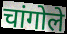
चांगोले